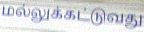
மல்லுக்கட்டுவது